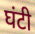
घंटी